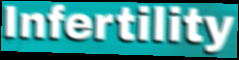
Infertility